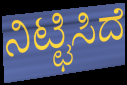
ನಿಟ್ಟಿಸಿದೆ